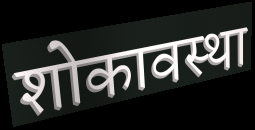
शोकावस्था